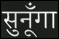
सुनूँगा